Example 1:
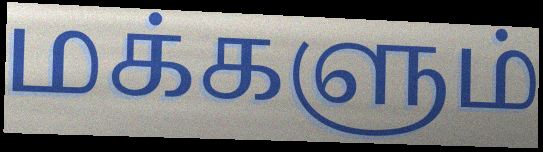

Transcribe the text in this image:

மக்களும்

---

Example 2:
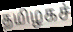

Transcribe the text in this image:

தமிழகச்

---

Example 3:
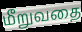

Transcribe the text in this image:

மீறுவதை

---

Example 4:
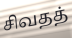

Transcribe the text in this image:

சிவதத்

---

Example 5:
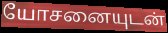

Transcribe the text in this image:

யோசனையுடன்